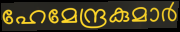
ഹേമേന്ദ്രകുമാർ